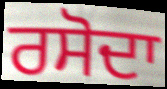
ਰਸੋਦਾ